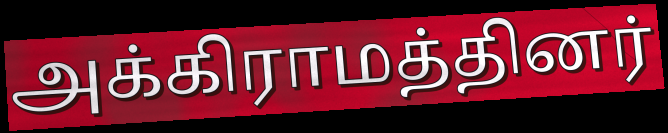
அக்கிராமத்தினர்